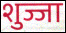
शुज्जा